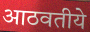
आठवतीये